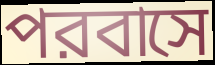
পরবাসে